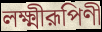
লক্ষ্মীরূপিণী